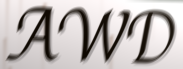
AWD